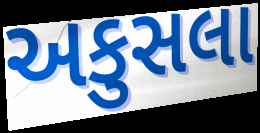
અકુસલા